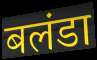
बलंडा